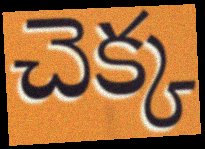
చెక్క